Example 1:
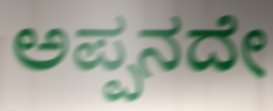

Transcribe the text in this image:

ಅಪ್ಪನದೇ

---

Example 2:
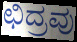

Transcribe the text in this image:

ಛಿದ್ರವು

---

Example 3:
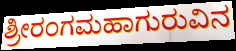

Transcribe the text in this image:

ಶ್ರೀರಂಗಮಹಾಗುರುವಿನ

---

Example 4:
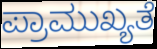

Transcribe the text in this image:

ಪ್ರಾಮುಖ್ಯತೆ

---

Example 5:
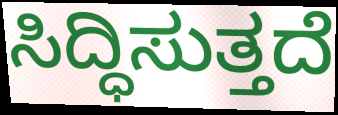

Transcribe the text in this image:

ಸಿದ್ಧಿಸುತ್ತದೆ